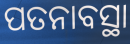
ପତନାବସ୍ଥା